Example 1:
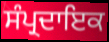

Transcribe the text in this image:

ਸੰਪ੍ਰਦਾਇਕ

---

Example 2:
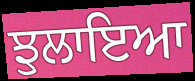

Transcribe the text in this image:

ਝੁਲਾਇਆ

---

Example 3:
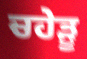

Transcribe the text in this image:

ਚਹੇੜੂ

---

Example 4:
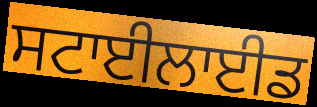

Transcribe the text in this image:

ਸਟਾਈਲਾਈਡ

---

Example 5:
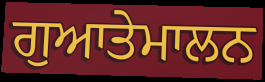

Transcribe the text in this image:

ਗੁਆਤੇਮਾਲਨ